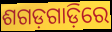
ଶଗଡ଼ଗାଡ଼ିରେ